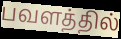
பவளத்தில்